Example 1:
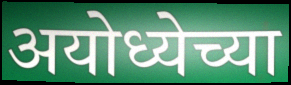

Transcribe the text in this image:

अयोध्येच्या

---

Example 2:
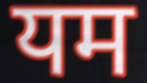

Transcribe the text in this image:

यम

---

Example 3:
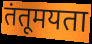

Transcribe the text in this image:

तंतूमयता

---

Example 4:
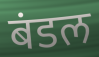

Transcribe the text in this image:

बंडल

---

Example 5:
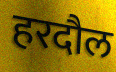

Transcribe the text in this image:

हरदौल